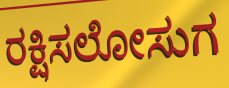
ರಕ್ಷಿಸಲೋಸುಗ